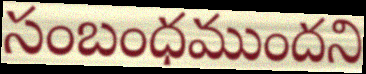
సంబంధముందని